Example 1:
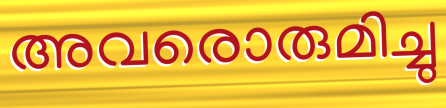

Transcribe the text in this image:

അവരൊരുമിച്ചു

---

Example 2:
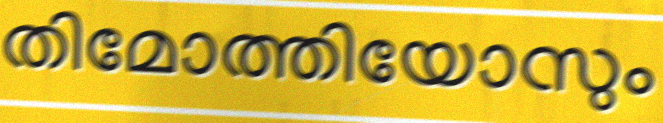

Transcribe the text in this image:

തിമോത്തിയോസും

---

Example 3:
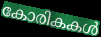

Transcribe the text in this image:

കോരികകൾ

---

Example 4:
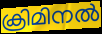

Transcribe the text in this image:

ക്രിമിനൽ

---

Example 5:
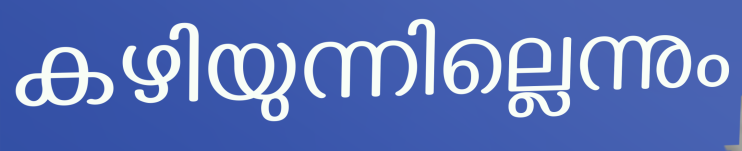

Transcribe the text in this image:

കഴിയുന്നില്ലെന്നും